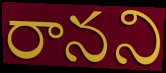
రానని